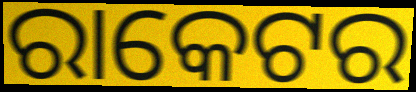
ରାକେଟର